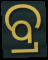
ବ୍ର